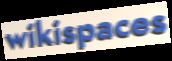
wikispaces